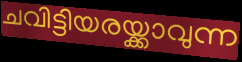
ചവിട്ടിയരയ്ക്കാവുന്ന